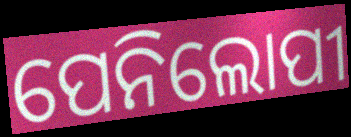
ପେନିଲୋପୀ